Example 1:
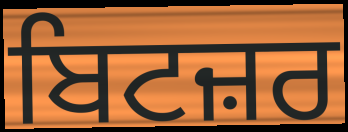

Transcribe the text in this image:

ਬਿਟਜ਼ਰ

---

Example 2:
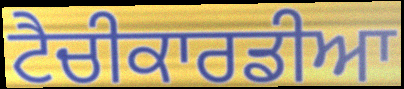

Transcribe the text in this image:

ਟੈਚੀਕਾਰਡੀਆ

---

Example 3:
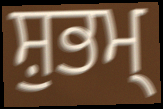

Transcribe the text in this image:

ਸ਼ੁਭਮ੍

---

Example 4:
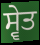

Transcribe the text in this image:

ਸ੍ਵੇਤ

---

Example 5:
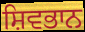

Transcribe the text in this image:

ਸ਼ਿਵਭਾਨ